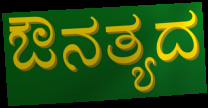
ಔನತ್ಯದ